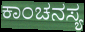
ಕಾಂಚನಸ್ಯ